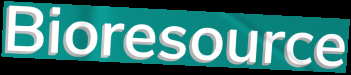
Bioresource